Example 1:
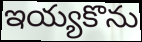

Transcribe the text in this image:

ఇయ్యకొను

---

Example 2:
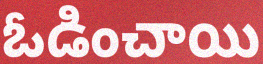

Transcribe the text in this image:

ఓడించాయి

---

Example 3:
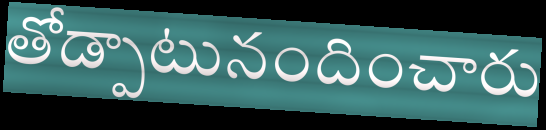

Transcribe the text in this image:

తోడ్పాటునందించారు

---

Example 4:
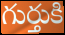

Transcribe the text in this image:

గుర్తుకి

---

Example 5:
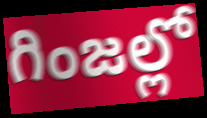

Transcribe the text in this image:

గింజల్లో